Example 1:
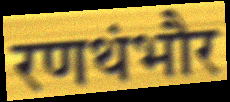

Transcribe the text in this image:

रणथंभौर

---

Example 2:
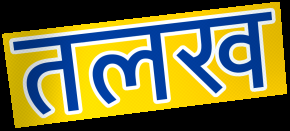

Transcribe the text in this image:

तलख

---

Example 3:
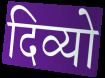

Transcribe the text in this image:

दिव्यो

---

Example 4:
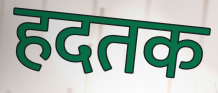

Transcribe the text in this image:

हदतक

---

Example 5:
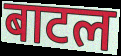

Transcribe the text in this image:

बाटल